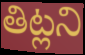
తిట్లని